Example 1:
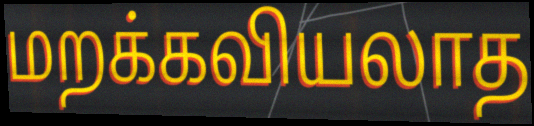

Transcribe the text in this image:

மறக்கவியலாத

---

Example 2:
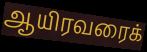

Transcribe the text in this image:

ஆயிரவரைக்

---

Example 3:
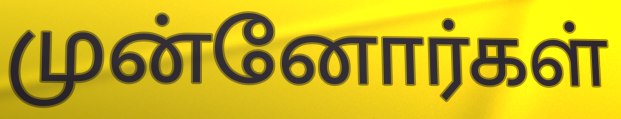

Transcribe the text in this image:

முன்னோர்கள்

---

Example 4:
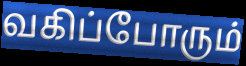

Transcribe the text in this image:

வகிப்போரும்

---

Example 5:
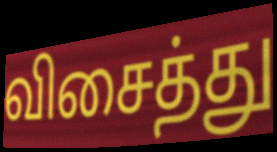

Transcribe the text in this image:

விசைத்து